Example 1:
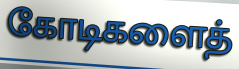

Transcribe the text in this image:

கோடிகளைத்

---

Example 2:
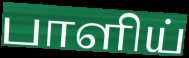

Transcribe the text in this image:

பாளிய்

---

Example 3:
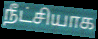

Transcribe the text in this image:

நீட்சியாக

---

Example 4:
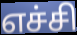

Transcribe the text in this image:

எச்சி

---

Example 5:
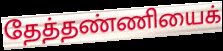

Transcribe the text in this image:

தேத்தண்ணியைக்